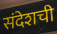
संदेशची